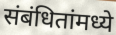
संबंधितांमध्ये